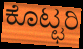
ಕೊಟ್ಟರಿ